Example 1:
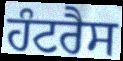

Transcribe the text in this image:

ਹੰਟਰੈਸ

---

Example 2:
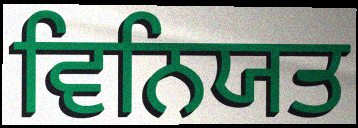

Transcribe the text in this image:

ਵਿਨਿਯਤ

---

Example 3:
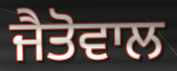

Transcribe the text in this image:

ਜੈਤੋਵਾਲ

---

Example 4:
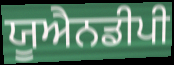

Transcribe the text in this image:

ਯੂਐਨਡੀਪੀ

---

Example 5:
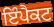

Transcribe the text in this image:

ਇੰਪੈਕਟ